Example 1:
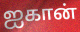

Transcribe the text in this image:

ஐகான்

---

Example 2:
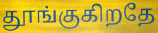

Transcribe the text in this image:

தூங்குகிறதே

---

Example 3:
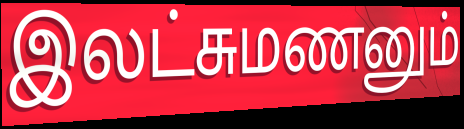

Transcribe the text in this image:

இலட்சுமணனும்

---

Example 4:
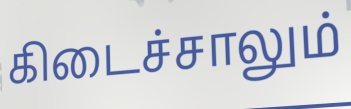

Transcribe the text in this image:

கிடைச்சாலும்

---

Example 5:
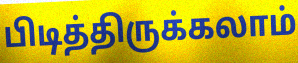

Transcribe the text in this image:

பிடித்திருக்கலாம்